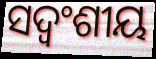
ସଦ୍ବଂଶୀୟ